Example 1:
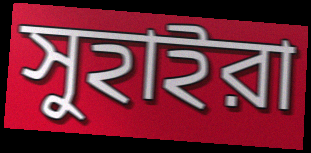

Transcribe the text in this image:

সুহাইরা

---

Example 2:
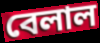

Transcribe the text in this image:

বেলাল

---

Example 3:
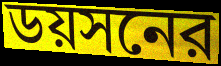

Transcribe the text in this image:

ডয়সনের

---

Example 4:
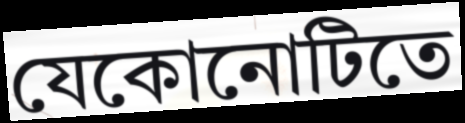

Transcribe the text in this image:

যেকোনোটিতে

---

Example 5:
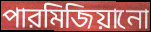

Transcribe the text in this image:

পারমিজিয়ানো